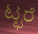
ಟ್ಟರೆ